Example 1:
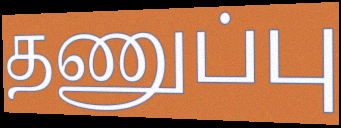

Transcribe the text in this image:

தணுப்பு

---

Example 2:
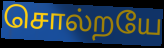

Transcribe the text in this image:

சொல்றயே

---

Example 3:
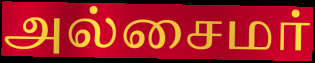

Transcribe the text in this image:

அல்சைமர்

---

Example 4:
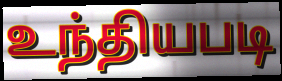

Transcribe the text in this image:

உந்தியபடி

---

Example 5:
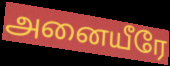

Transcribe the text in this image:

அனையீரே